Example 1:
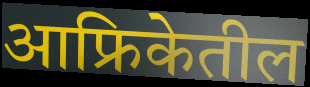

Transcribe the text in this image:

आफ्रिकेतील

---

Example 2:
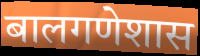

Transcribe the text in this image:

बालगणेशास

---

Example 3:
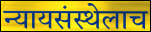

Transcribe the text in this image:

न्यायसंस्थेलाच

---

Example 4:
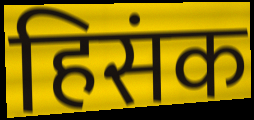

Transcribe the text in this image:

हिसंक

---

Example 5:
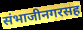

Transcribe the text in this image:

संभाजीनगरसह